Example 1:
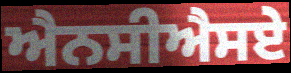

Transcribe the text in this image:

ਐਨਸੀਐਸਏ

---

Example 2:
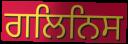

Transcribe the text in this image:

ਗਲਿਨਿਸ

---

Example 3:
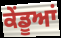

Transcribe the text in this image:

ਕੇਂਡੂਆਂ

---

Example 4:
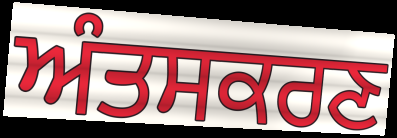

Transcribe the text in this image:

ਅੰਤਸਕਰਣ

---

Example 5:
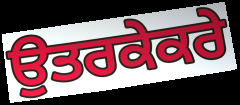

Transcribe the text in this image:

ਉਤਰਕੇਕਰੇ